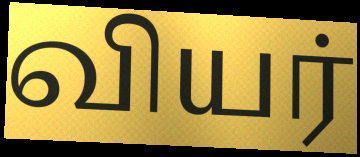
வியர்